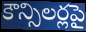
కౌన్సిలర్లపై